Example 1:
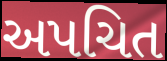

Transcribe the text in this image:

અપચિત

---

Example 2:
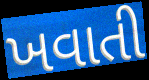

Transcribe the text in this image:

ખવાતી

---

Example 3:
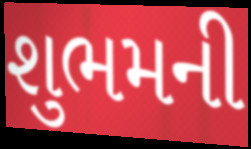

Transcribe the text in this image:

શુભમની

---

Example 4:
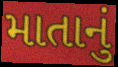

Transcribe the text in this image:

માતાનું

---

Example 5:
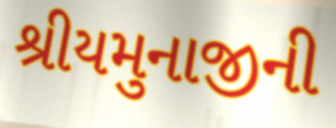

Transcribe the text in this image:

શ્રીયમુનાજીની